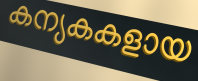
കന്യകകളായ